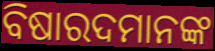
ବିଷାରଦମାନଙ୍କ